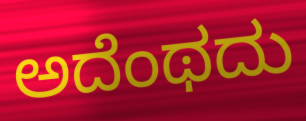
ಅದೆಂಥದು